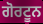
ਗੋਰਟੂਨ